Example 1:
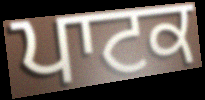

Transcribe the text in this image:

ਪਾਟਕ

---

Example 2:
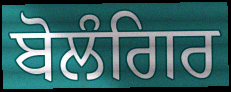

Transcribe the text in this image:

ਬੋਲੰਗਿਰ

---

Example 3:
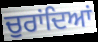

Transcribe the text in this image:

ਚੁਰਾਂਦਿਆਂ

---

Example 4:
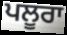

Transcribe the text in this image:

ਪਲੂਰਾ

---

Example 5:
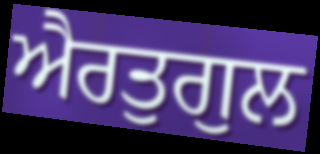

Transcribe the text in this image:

ਐਰਤੁਗੁਲ